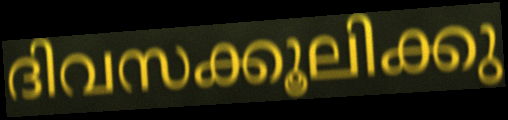
ദിവസക്കൂലിക്കു